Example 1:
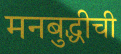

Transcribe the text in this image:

मनबुद्धीची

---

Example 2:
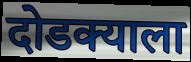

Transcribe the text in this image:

दोडक्याला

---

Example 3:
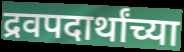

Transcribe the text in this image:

द्रवपदार्थांच्या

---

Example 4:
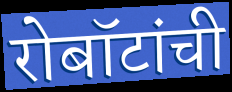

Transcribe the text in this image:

रोबॉटांची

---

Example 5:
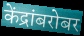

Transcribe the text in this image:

केंद्रांबरोबर